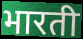
भारती